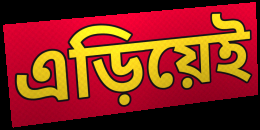
এড়িয়েই